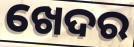
ଖେଦର